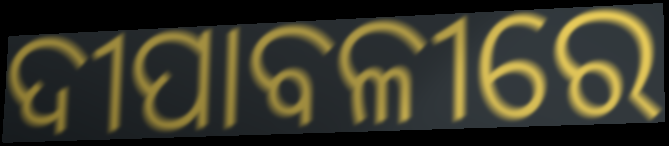
ଦୀପାବଳୀରେ